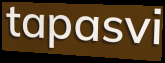
tapasvi